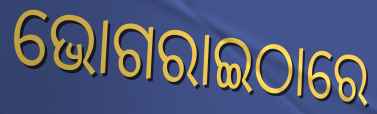
ଭୋଗରାଇଠାରେ